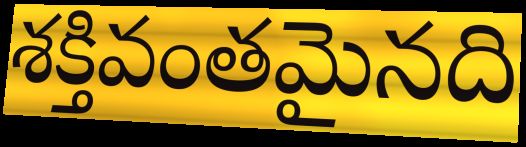
శక్తివంతమైనది